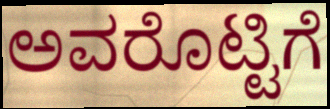
ಅವರೊಟ್ಟಿಗೆ